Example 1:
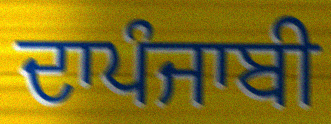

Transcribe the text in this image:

ਦਾਪੰਜਾਬੀ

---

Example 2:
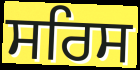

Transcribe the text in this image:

ਸਰਿਸ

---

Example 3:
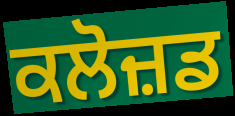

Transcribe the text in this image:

ਕਲੋਜ਼ਡ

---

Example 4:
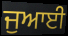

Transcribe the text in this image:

ਜੁਆਈ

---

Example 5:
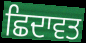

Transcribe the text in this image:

ਛਿਦਾਵਤ